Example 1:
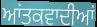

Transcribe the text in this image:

ਆਂਤਕਵਾਦੀਆਂ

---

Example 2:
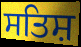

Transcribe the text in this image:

ਸਤਿਸ਼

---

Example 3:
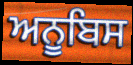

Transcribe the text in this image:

ਅਨੂਬਿਸ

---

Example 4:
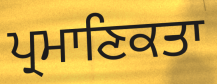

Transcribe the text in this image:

ਪ੍ਰਮਾਣਿਕਤਾ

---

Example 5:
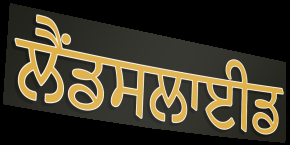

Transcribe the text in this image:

ਲੈਂਡਸਲਾਈਡ